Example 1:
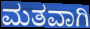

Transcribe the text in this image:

ಮತವಾಗಿ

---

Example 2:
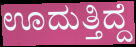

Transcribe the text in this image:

ಊದುತ್ತಿದ್ದೆ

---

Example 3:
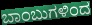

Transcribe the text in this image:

ಬಾಂಬುಗಳಿಂದ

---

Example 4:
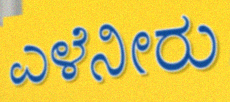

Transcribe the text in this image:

ಎಳೆನೀರು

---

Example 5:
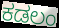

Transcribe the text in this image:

ಕಡಲಂ